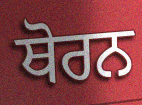
ਥੋਰਨ